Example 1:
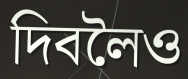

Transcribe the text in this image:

দিবলৈও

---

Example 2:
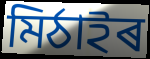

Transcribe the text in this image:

মিঠাইৰ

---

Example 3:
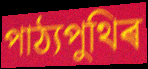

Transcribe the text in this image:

পাঠ্যপুথিৰ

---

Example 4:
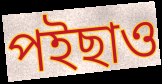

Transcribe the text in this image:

পইছাও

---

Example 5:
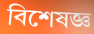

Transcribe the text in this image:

বিশেষজ্ঞ